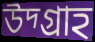
উদ্গ্রাহ